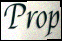
Prop